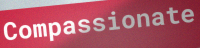
Compassionate